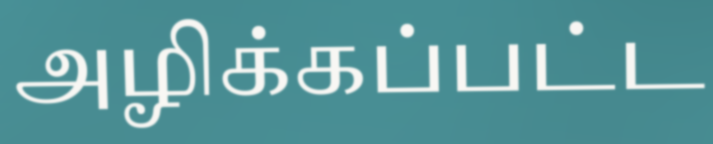
அழிக்கப்பட்ட